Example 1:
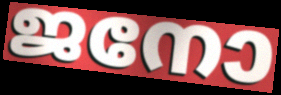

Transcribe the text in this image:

ജനോ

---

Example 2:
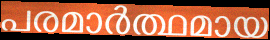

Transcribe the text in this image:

പരമാർത്ഥമായ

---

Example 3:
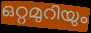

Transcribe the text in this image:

ഒറ്റമുറിയും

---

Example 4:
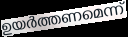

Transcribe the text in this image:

ഉയർത്തണമെന്ന്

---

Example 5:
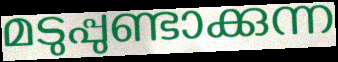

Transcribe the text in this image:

മടുപ്പുണ്ടാക്കുന്ന